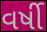
વર્ષી